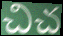
చిచ